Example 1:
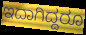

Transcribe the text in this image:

ಇದಾಗಿದ್ದರೂ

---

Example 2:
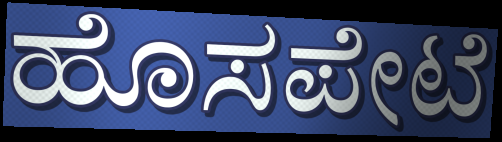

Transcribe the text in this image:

ಹೊಸಪೇಟೆ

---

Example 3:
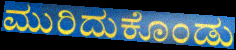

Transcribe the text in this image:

ಮುರಿದುಕೊಂಡು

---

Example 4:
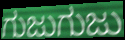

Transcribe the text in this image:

ಗುಜುಗುಜು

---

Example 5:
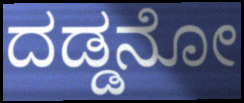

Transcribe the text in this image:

ದಡ್ಡನೋ